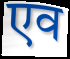
एव